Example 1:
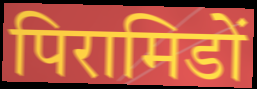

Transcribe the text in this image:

पिरामिडों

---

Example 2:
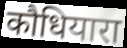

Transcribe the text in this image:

कौधियारा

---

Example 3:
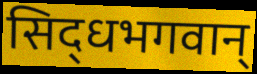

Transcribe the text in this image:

सिद्धभगवान्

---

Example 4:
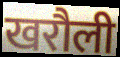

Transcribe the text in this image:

खरौली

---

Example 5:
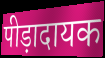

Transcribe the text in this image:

पीड़ादायक